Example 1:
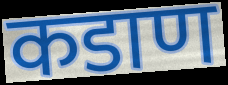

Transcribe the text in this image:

कडाण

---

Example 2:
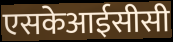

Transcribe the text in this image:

एसकेआईसीसी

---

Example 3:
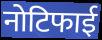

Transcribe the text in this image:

नोटिफाई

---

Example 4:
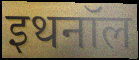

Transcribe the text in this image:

इथनॉल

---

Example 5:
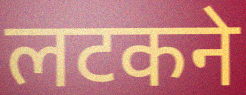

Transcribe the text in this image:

लटकने